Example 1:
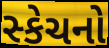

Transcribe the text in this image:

સ્કેચનો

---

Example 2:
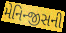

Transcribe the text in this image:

મેનિન્જીસની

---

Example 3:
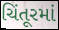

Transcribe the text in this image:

ચિંતૂરમાં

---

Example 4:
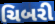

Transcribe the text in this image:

ચિબરી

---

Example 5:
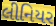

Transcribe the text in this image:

લીનિયર